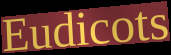
Eudicots